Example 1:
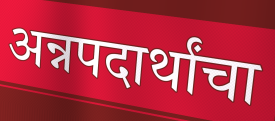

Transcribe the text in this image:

अन्नपदार्थांचा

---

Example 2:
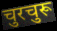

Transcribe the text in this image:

चुरचुरू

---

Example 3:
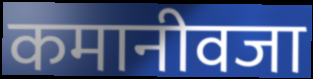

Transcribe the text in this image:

कमानीवजा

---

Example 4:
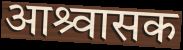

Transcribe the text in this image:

आश्र्वासक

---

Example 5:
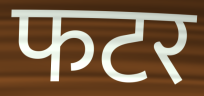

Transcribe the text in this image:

फटर